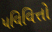
પવિવિત્તો